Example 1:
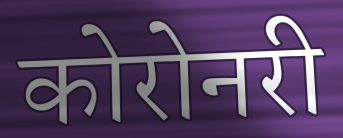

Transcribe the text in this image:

कोरोनरी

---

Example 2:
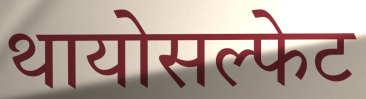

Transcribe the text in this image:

थायोसल्फेट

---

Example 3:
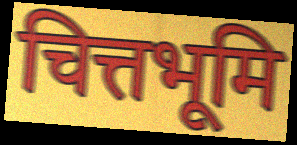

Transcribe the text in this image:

चित्तभूमि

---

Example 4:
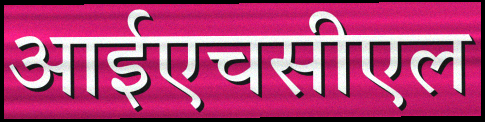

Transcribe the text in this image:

आईएचसीएल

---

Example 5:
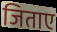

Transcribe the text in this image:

जिताए